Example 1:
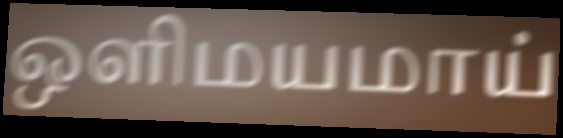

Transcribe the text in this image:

ஒளிமயமாய்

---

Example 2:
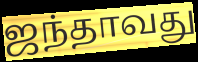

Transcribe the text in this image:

ஜந்தாவது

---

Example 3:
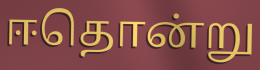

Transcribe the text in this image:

ஈதொன்று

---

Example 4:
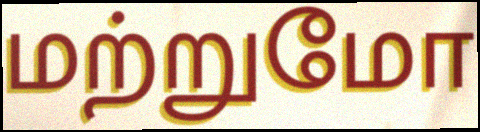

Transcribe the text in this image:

மற்றுமோ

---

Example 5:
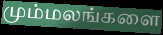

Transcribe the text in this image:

மும்மலங்களை